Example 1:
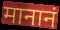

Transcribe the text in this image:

मानानं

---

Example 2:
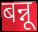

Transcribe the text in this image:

बन्नू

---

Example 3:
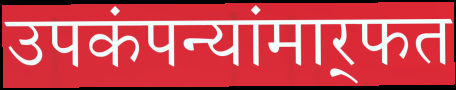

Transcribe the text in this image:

उपकंपन्यांमार्फत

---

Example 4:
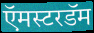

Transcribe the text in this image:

ऍमस्टरडॅम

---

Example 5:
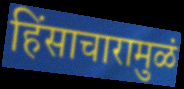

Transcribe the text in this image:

हिंसाचारामुळं